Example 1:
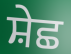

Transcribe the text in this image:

ਸ਼ੇਛ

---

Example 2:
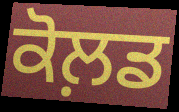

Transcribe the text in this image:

ਕੋਲ਼ਡ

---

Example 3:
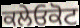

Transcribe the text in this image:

ਕਲੇਓਕੋਟ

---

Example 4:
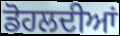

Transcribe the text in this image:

ਡੋਹਲਦੀਆਂ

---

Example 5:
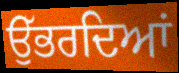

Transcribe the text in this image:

ਉੱਭਰਦਿਆਂ